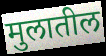
मुलातील